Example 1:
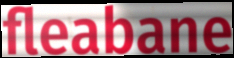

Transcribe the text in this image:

fleabane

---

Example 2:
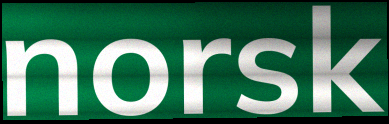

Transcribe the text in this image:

norsk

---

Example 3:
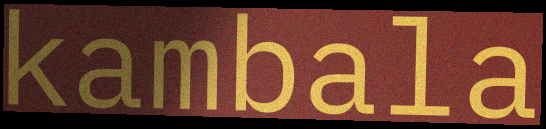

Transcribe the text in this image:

kambala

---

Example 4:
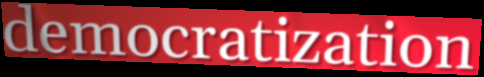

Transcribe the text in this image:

democratization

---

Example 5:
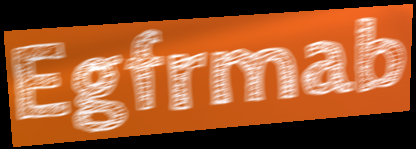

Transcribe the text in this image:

Egfrmab